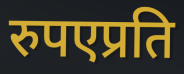
रुपएप्रति